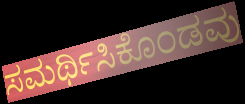
ಸಮರ್ಥಿಸಿಕೊಂಡವು